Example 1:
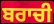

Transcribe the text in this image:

ਬਰਾਚੀ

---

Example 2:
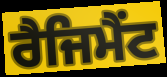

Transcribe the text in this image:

ਰੈਜਿਮੈਂਟ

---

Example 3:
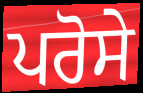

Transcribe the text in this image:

ਪਰੋਸੇ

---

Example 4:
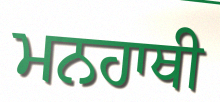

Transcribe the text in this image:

ਮਨਹਾਥੀ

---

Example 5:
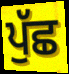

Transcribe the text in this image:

ਪੁੱਛ